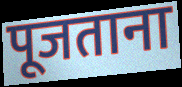
पूजताना